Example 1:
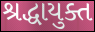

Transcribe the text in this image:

શ્રદ્ધાયુક્ત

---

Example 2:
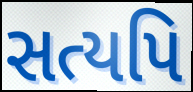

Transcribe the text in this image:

સત્યપિ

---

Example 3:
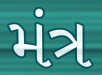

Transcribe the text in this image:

મંત્ર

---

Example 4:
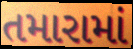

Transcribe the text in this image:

તમારામાં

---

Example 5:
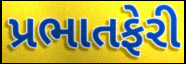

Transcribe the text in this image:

પ્રભાતફેરી